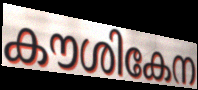
കൗശികേന